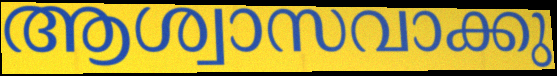
ആശ്വാസവാക്കു